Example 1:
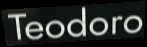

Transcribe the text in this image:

Teodoro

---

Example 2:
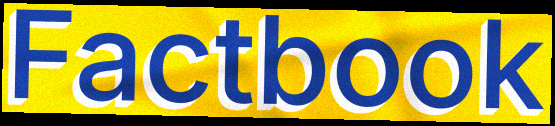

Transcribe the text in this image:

Factbook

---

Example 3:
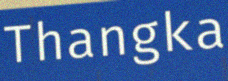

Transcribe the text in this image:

Thangka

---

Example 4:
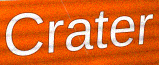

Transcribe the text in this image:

Crater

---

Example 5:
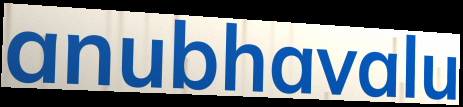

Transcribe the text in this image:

anubhavalu